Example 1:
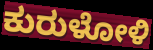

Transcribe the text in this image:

ಕುರುಳೋಳಿ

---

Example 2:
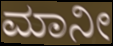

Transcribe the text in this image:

ಮಾನೀ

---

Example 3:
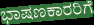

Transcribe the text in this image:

ಭಾಷಣಕಾರರಿಗೆ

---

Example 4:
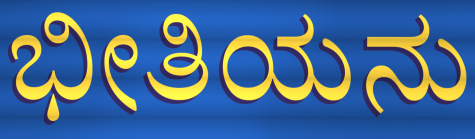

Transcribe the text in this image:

ಭೀತಿಯನು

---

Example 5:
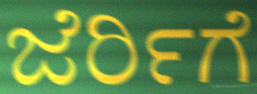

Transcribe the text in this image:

ಜೆರ್ರಿಗೆ